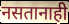
नसतानाही